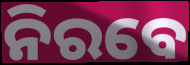
ନିରବେ